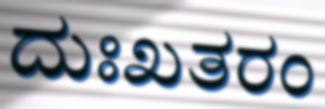
ದುಃಖತರಂ